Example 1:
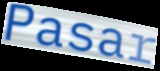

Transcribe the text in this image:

Pasar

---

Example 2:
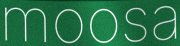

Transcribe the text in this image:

moosa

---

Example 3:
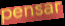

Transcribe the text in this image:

pensar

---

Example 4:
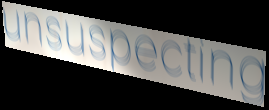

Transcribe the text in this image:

unsuspecting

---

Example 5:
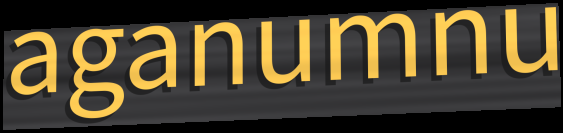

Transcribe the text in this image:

aganumnu